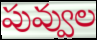
పువ్వుల